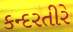
કન્દરતીરે